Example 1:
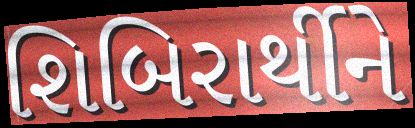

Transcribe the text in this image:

શિબિરાર્થીને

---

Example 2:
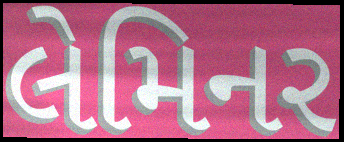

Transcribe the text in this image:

લેમિનર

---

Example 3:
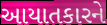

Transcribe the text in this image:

આયાતકારને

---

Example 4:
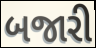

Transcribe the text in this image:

બજારી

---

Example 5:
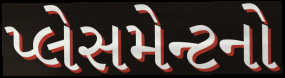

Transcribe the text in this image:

પ્લેસમેન્ટનો